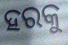
ହରକୁ